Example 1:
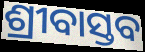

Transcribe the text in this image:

ଶ୍ରୀବାସ୍ତବ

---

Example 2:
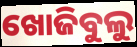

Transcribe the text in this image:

ଖୋଜିବୁଲୁ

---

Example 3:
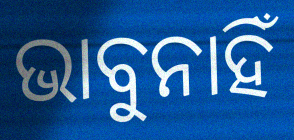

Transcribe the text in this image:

ଭାବୁନାହିଁ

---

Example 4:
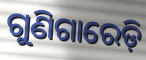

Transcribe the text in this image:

ଗୁଣିଗାରେଡ଼ି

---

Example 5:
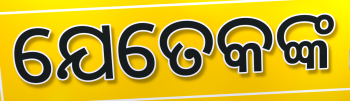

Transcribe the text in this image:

ଯେତେକଙ୍କ